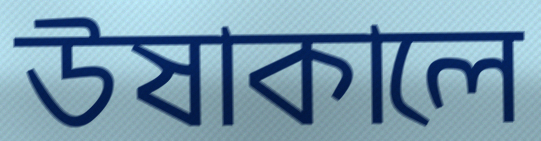
উষাকালে